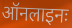
ऑनलाइनः